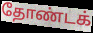
தோண்டக்